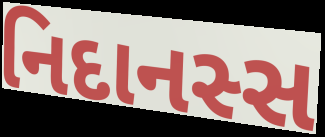
નિદાનસ્સ